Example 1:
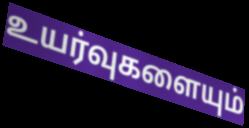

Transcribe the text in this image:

உயர்வுகளையும்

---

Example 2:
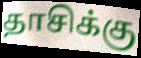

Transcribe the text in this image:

தாசிக்கு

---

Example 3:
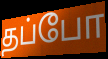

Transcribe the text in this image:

தப்போ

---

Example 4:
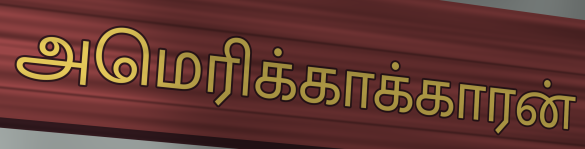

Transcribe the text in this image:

அமெரிக்காக்காரன்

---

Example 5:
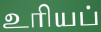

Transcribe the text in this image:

உரியப்